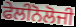
ਫੇਲੀਨੋਲੋਜੀ